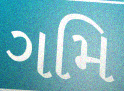
ગમિ